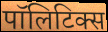
पॉलिटिक्स